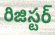
రిజిస్టర్